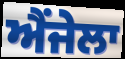
ਐਂਜੇਲਾ